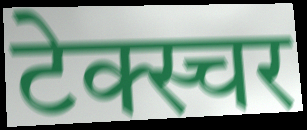
टेक्स्चर